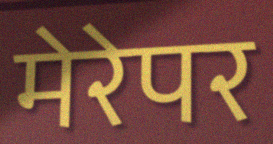
मेरेपर